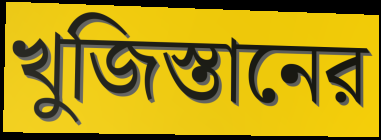
খুজিস্তানের